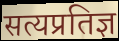
सत्यप्रतिज्ञ